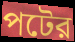
পটের